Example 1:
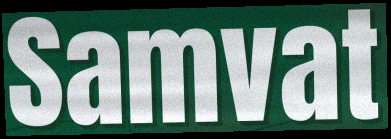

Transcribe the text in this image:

Samvat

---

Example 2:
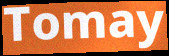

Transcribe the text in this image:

Tomay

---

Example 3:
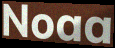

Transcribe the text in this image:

Noaa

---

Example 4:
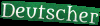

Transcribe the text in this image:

Deutscher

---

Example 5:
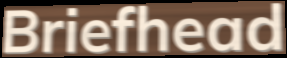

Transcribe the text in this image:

Briefhead